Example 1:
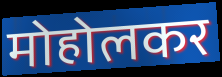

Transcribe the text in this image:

मोहोलकर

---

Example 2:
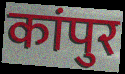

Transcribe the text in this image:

कांपुर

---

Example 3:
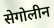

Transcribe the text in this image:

सेगोलीन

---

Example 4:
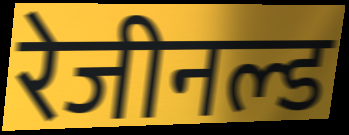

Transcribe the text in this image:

रेजीनल्ड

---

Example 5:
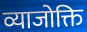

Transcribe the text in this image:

व्याजोक्ति